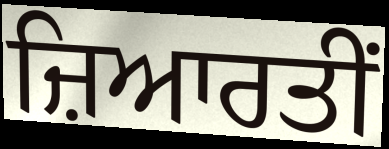
ਜ਼ਿਆਰਤੀਂ